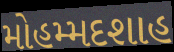
મોહમ્મદશાહ